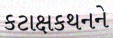
કટાક્ષકથનને